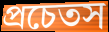
প্রচেতস